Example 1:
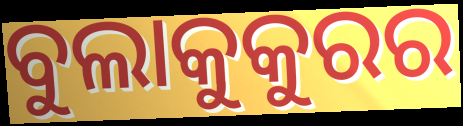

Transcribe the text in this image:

ବୁଲାକୁକୁରର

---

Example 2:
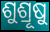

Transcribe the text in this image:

ଶୁଶ୍ରୂଷୁ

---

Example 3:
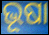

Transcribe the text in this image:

ଭୂଷା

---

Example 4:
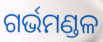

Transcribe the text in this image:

ଗର୍ଭମଣ୍ଡଳ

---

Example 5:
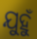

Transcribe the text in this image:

ଯୁହୁଁ